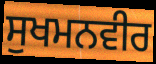
ਸੁਖਮਨਵੀਰ